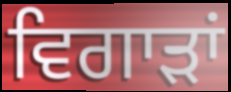
ਵਿਗਾੜਾਂ